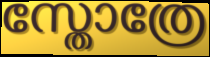
സ്തോത്രേ